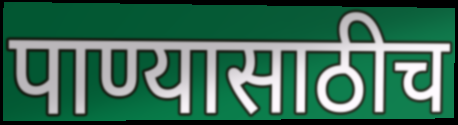
पाण्यासाठीच